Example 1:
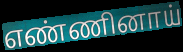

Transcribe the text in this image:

எண்ணினாய்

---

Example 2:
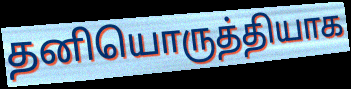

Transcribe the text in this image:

தனியொருத்தியாக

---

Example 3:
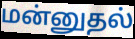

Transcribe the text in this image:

மன்னுதல்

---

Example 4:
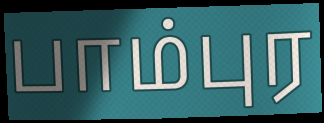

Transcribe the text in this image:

பாம்புர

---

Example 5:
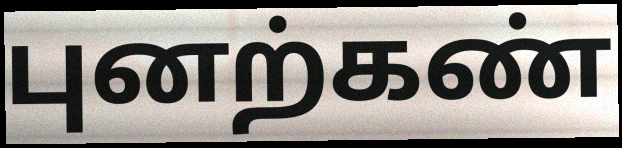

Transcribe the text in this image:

புனற்கண்